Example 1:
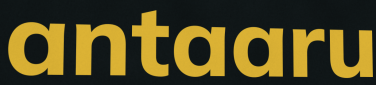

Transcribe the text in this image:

antaaru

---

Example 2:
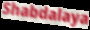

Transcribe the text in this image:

Shabdalaya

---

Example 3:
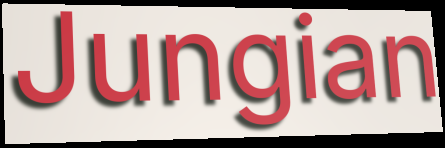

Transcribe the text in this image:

Jungian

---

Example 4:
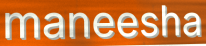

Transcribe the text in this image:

maneesha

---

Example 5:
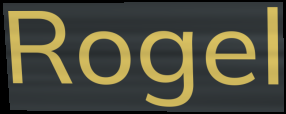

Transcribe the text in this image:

Rogel